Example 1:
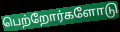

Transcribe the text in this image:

பெற்றோர்களோடு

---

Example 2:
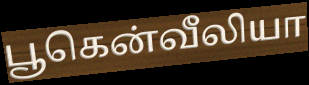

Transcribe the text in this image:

பூகென்வீலியா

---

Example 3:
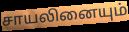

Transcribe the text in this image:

சாயலினையும்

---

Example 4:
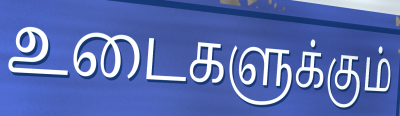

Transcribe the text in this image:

உடைகளுக்கும்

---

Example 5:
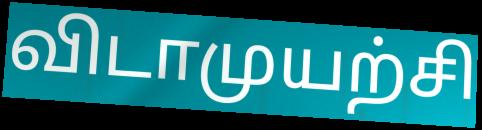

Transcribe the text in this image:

விடாமுயற்சி